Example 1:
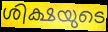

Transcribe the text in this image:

ശിക്ഷയുടെ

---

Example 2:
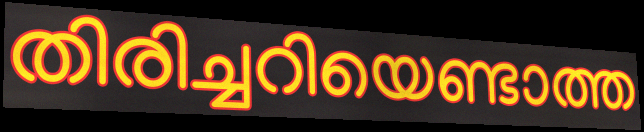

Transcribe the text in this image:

തിരിച്ചറിയെണ്ടാത്ത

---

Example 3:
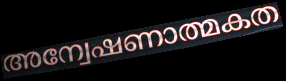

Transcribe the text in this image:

അന്വേഷണാത്മകത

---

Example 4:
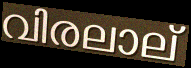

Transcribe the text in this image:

വിരലാല്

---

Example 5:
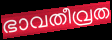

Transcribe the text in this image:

ഭാവതീവ്രത